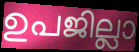
ഉപജില്ലാ